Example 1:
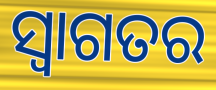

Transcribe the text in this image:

ସ୍ଵାଗତର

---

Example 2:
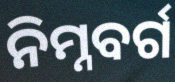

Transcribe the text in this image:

ନିମ୍ନବର୍ଗ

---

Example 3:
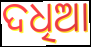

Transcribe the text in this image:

ଦଧିଆ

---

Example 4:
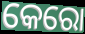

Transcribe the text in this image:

କେରୋ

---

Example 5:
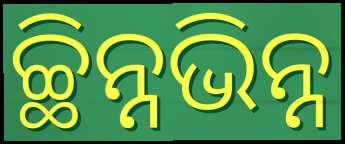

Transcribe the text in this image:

ଚ୍ଛିନ୍ନଭିନ୍ନ